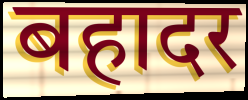
बहादर